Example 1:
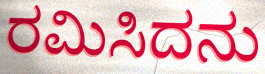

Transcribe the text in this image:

ರಮಿಸಿದನು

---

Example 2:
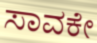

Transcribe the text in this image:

ಸಾವಕೇ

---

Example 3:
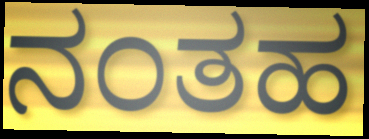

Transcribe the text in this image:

ನಂತಹ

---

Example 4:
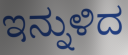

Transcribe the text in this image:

ಇನ್ನುಳಿದ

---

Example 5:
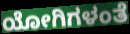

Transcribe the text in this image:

ಯೋಗಿಗಳಂತೆ